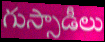
గుస్సాడీలు